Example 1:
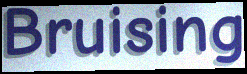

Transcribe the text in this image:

Bruising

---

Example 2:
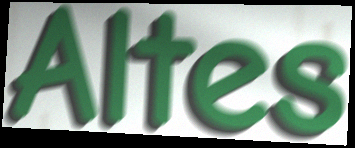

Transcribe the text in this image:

Altes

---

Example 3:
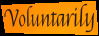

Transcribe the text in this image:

Voluntarily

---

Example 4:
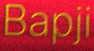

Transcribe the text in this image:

Bapji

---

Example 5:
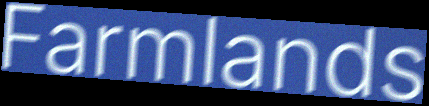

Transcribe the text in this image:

Farmlands